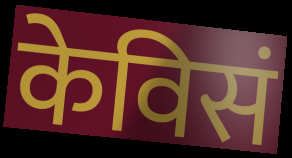
केविसं